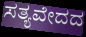
ಸತ್ಯವೇದದ